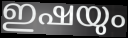
ഇഷയും